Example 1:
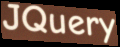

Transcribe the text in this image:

JQuery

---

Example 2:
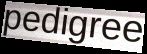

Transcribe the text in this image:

pedigree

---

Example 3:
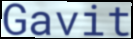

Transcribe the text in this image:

Gavit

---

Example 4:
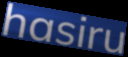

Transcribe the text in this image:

hasiru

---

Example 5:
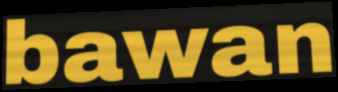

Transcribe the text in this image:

bawan